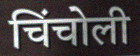
चिंचोली